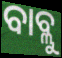
ବାବ୍ଲୁ